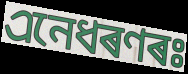
এনেধৰণৰঃ